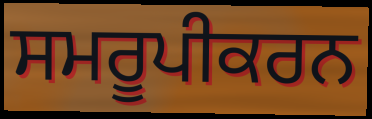
ਸਮਰੂਪੀਕਰਨ